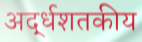
अर्द्धशतकीय